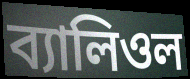
ব্যালিওল